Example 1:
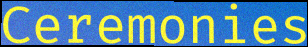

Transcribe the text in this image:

Ceremonies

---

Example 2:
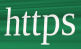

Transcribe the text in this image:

https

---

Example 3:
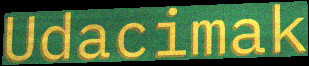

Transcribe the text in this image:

Udacimak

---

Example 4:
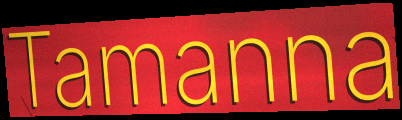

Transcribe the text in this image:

Tamanna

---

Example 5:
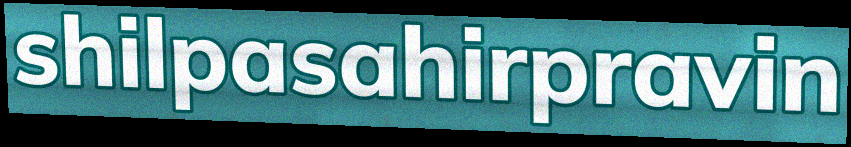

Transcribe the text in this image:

shilpasahirpravin